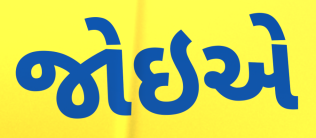
જોઇએ